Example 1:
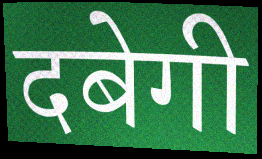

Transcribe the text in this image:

दबेगी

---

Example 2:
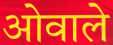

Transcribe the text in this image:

ओवाले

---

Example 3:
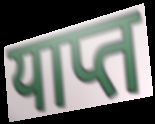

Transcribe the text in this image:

याप्त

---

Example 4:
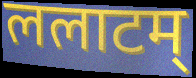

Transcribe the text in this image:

ललाटम्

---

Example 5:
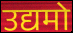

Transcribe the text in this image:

उद्यमो